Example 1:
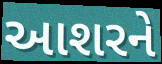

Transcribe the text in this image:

આશરને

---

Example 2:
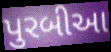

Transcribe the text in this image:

પુરબીઆ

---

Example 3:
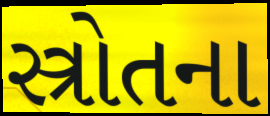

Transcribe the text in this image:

સ્ત્રોતના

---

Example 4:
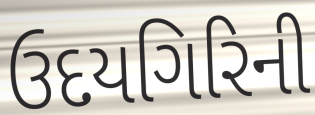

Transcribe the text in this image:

ઉદયગિરિની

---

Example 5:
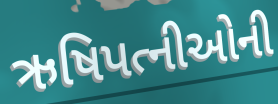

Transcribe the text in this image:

ઋષિપત્નીઓની